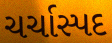
ચર્ચાસ્પદ